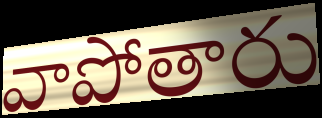
వాపోతారు